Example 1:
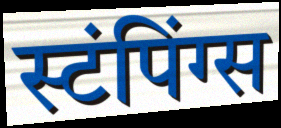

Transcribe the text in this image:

स्टंपिंग्स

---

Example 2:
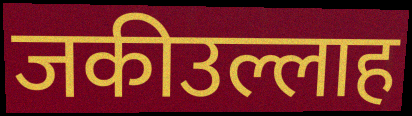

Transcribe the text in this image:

जकीउल्लाह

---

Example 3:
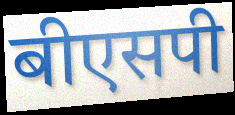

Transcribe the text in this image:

बीएसपी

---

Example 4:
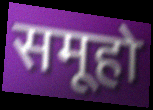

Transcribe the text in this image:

समूहो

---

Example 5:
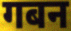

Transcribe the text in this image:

गबन